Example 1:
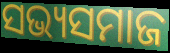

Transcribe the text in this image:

ସଭ୍ୟସମାଜ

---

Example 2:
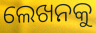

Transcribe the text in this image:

ଲେଖନକୁ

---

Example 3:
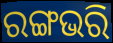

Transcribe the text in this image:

ରଙ୍ଗଭରି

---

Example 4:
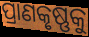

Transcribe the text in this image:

ପ୍ରାଣକୃଷ୍ଣକୁ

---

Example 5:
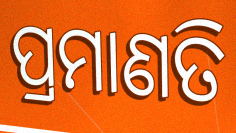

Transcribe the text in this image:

ପ୍ରମାଣତି